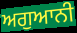
ਅਗੁਆਨੀ